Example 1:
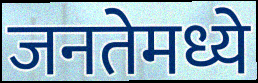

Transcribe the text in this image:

जनतेमध्ये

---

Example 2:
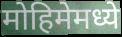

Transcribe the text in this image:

मोहिमेमध्ये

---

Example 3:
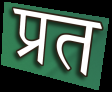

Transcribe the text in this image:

प्रत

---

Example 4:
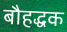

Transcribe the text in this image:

बौहद्धक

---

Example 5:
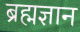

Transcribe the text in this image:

ब्रह्मज्ञान